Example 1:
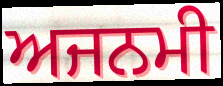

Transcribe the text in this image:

ਅਜਨਮੀ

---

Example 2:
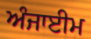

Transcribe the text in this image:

ਅੰਜਾਈਮ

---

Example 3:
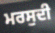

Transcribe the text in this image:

ਮਰਸੁਦੀ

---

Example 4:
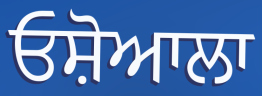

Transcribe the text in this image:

ਓਸ਼ੋਆਲਾ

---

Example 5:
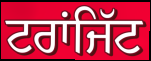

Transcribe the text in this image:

ਟਰਾਂਜਿੱਟ